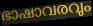
ഭാഷാവരവും